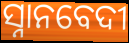
ସ୍ନାନବେଦୀ